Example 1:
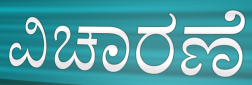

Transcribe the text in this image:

ವಿಚಾರಣೆ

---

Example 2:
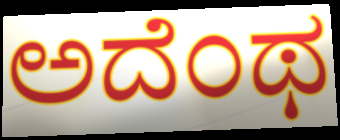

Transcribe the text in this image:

ಅದೆಂಥ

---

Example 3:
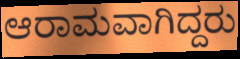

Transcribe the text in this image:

ಆರಾಮವಾಗಿದ್ದರು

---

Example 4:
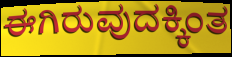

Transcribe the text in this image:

ಈಗಿರುವುದಕ್ಕಿಂತ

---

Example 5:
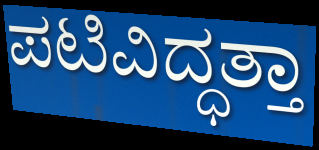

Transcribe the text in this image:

ಪಟಿವಿದ್ಧತ್ತಾ